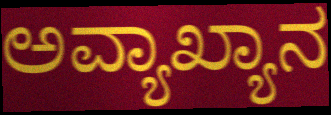
ಅವ್ಯಾಖ್ಯಾನ